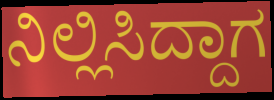
ನಿಲ್ಲಿಸಿದ್ದಾಗ